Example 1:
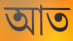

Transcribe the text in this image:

আত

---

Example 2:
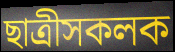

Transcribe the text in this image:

ছাত্ৰীসকলক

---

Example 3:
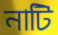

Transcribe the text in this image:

নাটি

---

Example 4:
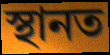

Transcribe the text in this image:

স্থানত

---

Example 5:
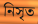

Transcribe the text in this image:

নিসৃত